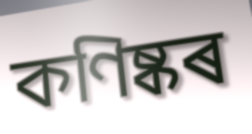
কণিষ্কৰ